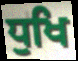
ਧੁਖਿ